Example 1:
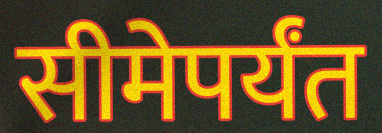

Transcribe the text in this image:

सीमेपर्यंत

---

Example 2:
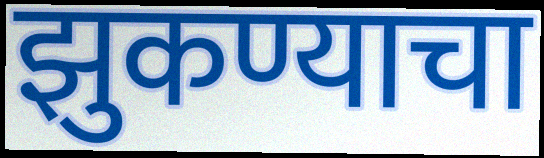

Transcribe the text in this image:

झुकण्याचा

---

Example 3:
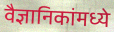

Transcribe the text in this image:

वैज्ञानिकांमध्ये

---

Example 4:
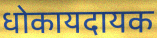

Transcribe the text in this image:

धोकायदायक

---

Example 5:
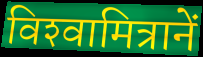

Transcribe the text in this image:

विश्वामित्रानें